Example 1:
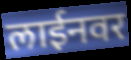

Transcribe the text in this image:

लाईनवर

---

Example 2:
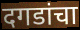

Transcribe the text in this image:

दगडांचा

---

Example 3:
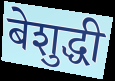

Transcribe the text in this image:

बेशुद्धी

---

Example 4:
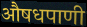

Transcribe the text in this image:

औषधपाणी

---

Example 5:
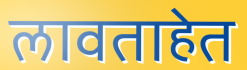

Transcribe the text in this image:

लावताहेत